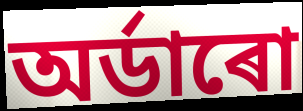
অৰ্ডাৰো